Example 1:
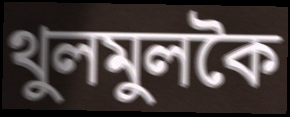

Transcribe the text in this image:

থুলমুলকৈ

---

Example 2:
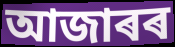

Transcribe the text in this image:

আজাৰৰ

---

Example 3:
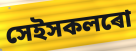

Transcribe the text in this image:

সেইসকলৰো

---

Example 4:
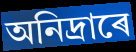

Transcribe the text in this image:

অনিদ্ৰাৰে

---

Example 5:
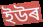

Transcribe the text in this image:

ইউৰ